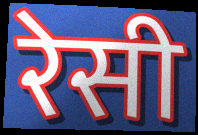
रेसी